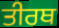
ਤੀਰਥ